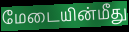
மேடையின்மீது